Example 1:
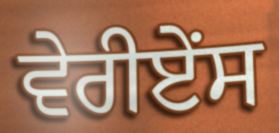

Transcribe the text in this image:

ਵੇਰੀਏਂਸ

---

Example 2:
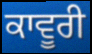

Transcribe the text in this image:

ਕਾਵੂਰੀ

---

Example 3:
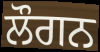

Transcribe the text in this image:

ਲੌਗਨ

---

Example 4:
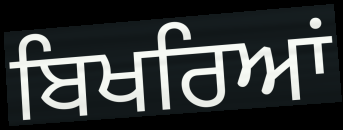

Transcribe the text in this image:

ਬਿਖਰਿਆਂ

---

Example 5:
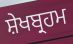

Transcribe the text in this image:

ਸ਼ੇਖਬ੍ਰਹਮ